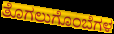
ತೊಗಲುಗೊಂಬೆಗಳ